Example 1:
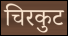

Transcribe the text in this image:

चिरकुट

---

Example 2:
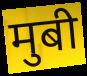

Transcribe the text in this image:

मुबी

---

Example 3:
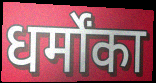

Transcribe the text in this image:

धर्मोंका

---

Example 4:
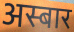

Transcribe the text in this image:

अस्बार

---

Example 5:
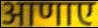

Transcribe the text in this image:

आणाए